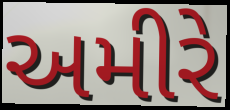
અમીરે